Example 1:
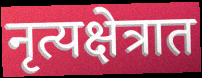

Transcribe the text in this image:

नृत्यक्षेत्रात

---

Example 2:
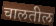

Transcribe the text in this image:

चालतील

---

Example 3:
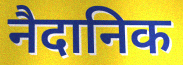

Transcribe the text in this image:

नैदानिक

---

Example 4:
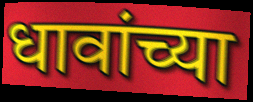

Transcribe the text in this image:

धावांच्या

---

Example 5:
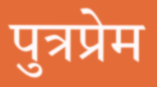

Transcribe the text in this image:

पुत्रप्रेम